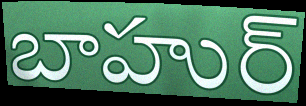
బాహుర్